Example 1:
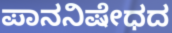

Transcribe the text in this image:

ಪಾನನಿಷೇಧದ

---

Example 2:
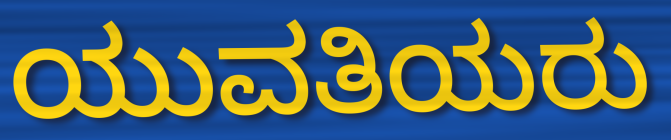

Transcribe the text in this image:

ಯುವತಿಯರು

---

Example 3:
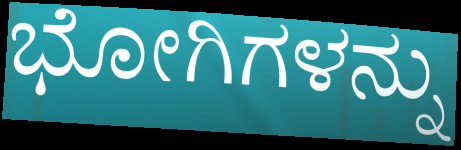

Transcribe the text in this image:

ಭೋಗಿಗಳನ್ನು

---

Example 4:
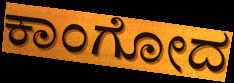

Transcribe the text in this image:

ಕಾಂಗೋದ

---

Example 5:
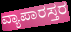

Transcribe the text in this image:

ವ್ಯಾಪಾರಸ್ತರ